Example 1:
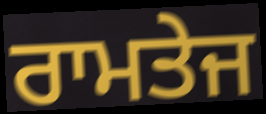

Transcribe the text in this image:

ਰਾਮਤੇਜ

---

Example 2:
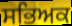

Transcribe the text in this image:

ਸਭਿਅਕ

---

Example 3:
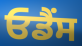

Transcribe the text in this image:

ਓਡੈਂਸ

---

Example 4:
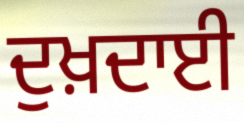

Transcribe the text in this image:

ਦੁਖ਼ਦਾਈ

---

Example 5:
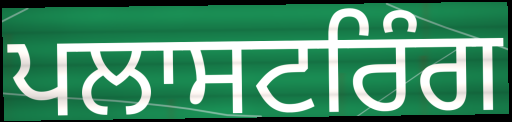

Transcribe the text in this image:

ਪਲਾਸਟਰਿੰਗ